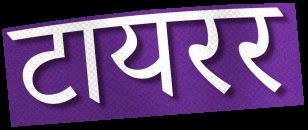
टायरर